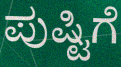
ಪುಷ್ಟಿಗೆ